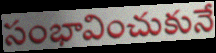
సంభావించుకునే